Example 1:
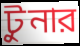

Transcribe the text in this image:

টুনার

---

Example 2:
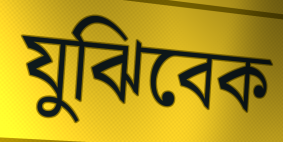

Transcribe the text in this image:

যুঝিবেক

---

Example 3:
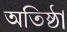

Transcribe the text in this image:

অতিষ্ঠা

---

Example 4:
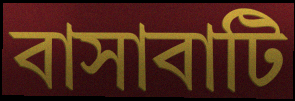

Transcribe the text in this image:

বাসাবাটি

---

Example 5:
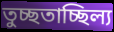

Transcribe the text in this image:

তুচ্ছতাচ্ছিল্য